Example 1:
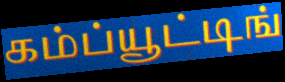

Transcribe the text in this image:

கம்ப்யூட்டிங்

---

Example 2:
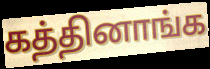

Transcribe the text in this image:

கத்தினாங்க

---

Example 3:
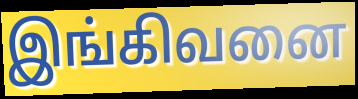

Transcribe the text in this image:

இங்கிவனை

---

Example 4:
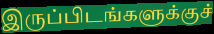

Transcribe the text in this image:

இருப்பிடங்களுக்குச்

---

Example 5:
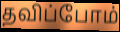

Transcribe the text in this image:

தவிப்போம்